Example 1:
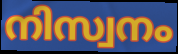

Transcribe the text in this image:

നിസ്വനം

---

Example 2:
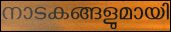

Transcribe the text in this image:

നാടകങ്ങളുമായി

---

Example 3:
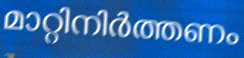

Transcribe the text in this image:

മാറ്റിനിർത്തണം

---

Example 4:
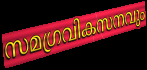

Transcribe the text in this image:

സമഗ്രവികസനവും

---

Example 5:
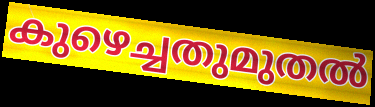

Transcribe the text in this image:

കുഴെച്ചതുമുതൽ